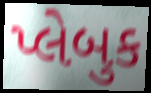
પ્લેબુક